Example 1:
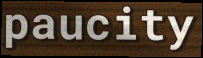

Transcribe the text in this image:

paucity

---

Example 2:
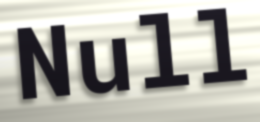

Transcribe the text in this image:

Null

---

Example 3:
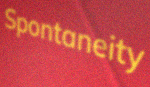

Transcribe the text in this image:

Spontaneity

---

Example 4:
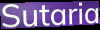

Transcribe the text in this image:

Sutaria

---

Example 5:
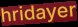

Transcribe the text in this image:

hridayer